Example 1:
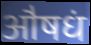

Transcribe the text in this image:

औषधं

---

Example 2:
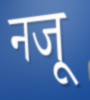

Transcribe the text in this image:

नजू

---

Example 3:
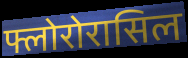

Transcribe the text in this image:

फ्लोरोरासिल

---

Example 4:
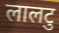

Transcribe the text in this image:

लालटु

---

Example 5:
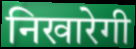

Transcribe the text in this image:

निखारेगी